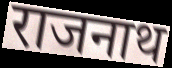
राजनाथ